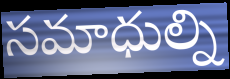
సమాధుల్ని